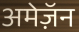
अमेज़ॅन